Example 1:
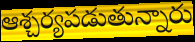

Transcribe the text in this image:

ఆశ్చర్యపడుతున్నారు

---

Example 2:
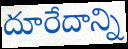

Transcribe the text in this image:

దూరేదాన్ని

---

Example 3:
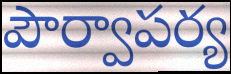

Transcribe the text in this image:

పౌర్వాపర్య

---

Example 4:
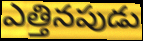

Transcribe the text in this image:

ఎత్తినపుడు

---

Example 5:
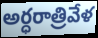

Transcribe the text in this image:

అర్ధరాత్రివేళ